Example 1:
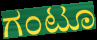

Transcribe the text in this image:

ಗಂಟೂ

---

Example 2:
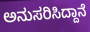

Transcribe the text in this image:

ಅನುಸರಿಸಿದ್ದಾನೆ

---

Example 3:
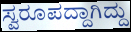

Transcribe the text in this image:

ಸ್ವರೂಪದ್ದಾಗಿದ್ದು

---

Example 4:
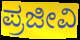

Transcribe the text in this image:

ಪ್ರಜೀವಿ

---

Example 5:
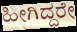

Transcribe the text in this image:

ಹೀಗಿದ್ದರೇ